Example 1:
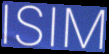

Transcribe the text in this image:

ISIM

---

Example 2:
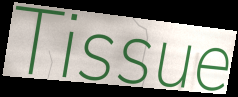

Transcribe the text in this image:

Tissue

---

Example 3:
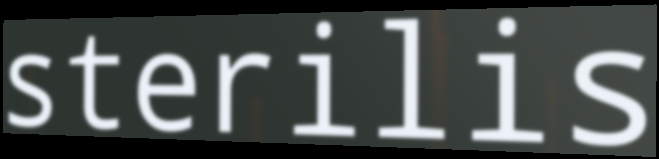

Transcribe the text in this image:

sterilis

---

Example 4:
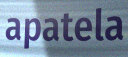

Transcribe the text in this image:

apatela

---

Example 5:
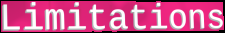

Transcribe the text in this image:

Limitations